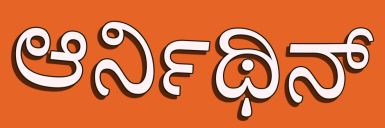
ಆರ್ನಿಥಿನ್